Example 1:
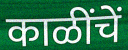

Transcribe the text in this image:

काळींचें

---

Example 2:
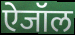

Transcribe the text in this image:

ऐजॉल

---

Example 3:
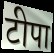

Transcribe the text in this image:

टीपा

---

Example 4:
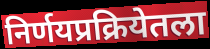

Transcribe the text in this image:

निर्णयप्रक्रियेतला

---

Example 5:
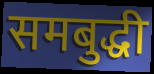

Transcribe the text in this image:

समबुद्धी